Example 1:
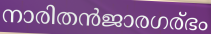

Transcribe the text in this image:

നാരിതൻജാരഗര്ഭം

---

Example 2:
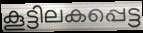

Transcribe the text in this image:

കൂട്ടിലകപ്പെട്ട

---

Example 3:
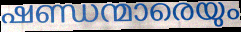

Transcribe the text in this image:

ഷണ്ഡന്മാരെയും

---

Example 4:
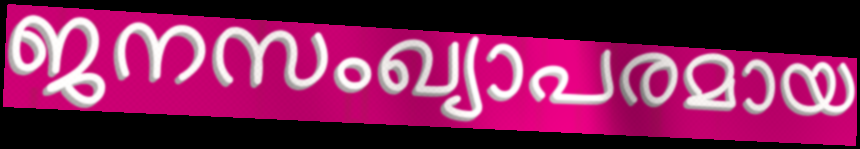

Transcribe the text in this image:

ജനസംഖ്യാപരമായ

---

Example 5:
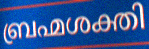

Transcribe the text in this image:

ബ്രഹ്മശക്തി